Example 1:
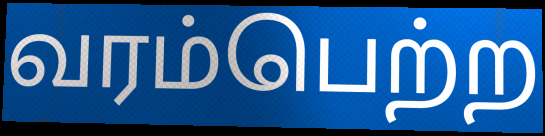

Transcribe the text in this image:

வரம்பெற்ற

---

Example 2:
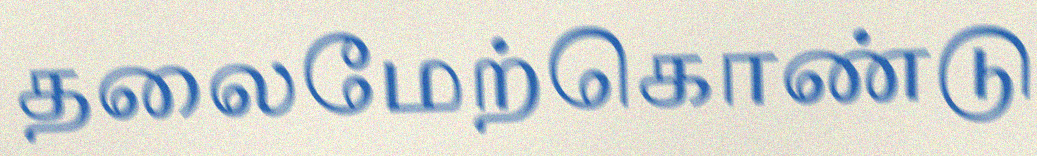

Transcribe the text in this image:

தலைமேற்கொண்டு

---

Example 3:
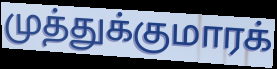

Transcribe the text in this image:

முத்துக்குமாரக்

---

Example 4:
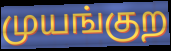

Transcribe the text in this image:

முயங்குற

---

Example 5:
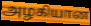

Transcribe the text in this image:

அழகியான